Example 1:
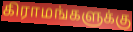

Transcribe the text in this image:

கிராமங்களுக்கு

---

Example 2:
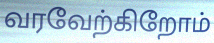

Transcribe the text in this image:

வரவேற்கிறோம்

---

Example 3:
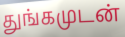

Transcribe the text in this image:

துங்கமுடன்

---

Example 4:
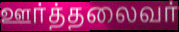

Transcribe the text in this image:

ஊர்த்தலைவர்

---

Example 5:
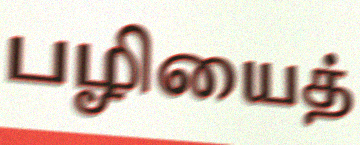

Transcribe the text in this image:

பழியைத்